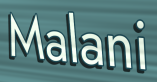
Malani